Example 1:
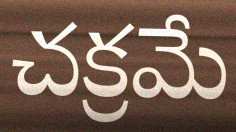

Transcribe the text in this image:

చక్రమే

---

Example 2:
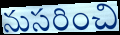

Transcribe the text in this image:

నుసరించి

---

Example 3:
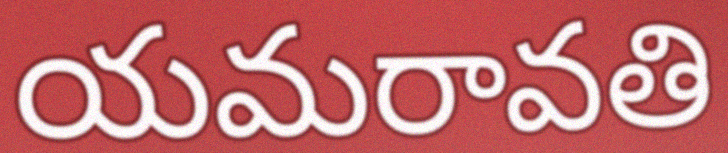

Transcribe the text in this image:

యమరావతి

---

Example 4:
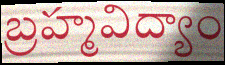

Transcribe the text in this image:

బ్రహ్మవిద్యాం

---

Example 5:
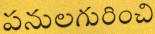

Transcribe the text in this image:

పనులగురించి